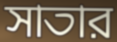
সাতার